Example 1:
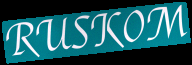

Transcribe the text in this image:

RUSKOM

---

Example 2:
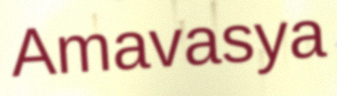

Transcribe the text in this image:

Amavasya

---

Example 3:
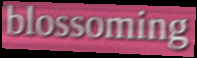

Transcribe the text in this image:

blossoming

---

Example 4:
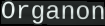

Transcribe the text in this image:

Organon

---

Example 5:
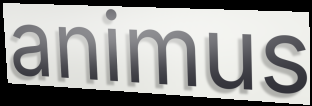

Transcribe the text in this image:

animus